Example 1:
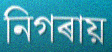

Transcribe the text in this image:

নিগৰায়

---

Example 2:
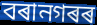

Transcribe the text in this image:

বৰানগৰৰ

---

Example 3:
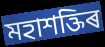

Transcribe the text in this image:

মহাশক্তিৰ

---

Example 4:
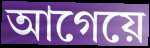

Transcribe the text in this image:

আগেয়ে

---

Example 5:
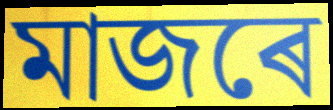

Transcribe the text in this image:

মাজৰে